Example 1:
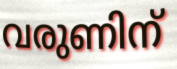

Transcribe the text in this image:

വരുണിന്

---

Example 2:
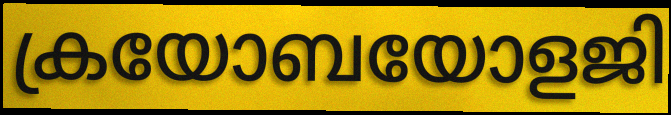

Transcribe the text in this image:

ക്രയോബയോളജി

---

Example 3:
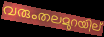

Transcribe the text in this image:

വരുംതലമുറയില്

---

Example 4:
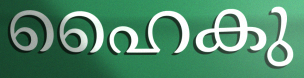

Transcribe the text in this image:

ഹൈകു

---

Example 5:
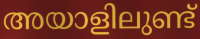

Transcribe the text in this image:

അയാളിലുണ്ട്